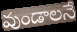
వుండాలనే